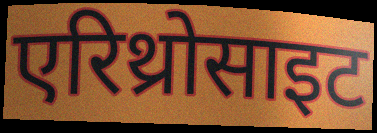
एरिथ्रोसाइट